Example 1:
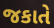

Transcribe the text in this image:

જકાતે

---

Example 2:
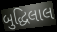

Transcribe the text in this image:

બુદ્ધિલાલ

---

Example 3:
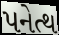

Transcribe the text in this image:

પનેત્થ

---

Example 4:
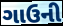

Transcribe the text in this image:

ગાઉની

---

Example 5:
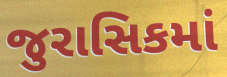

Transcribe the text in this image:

જુરાસિકમાં